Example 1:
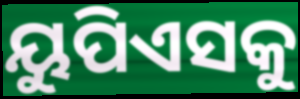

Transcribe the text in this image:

ୟୁପିଏସକୁ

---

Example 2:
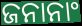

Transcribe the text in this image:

ଜନାନାଂ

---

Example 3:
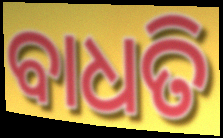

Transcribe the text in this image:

ବାଧତି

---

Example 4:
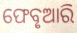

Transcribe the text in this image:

ଫେବୃଆରି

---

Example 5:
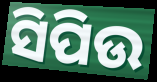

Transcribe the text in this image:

ସିପିଉ